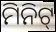
ମିନିଟ୍